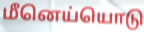
மீனெய்யொடு